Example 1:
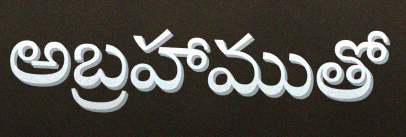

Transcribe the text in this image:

అబ్రహాముతో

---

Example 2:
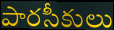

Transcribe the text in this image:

పారసీకులు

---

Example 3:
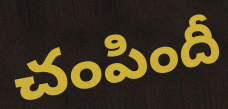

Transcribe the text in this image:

చంపిందీ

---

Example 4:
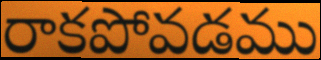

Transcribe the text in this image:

రాకపోవడము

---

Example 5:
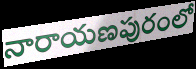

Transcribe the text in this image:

నారాయణపురంలో